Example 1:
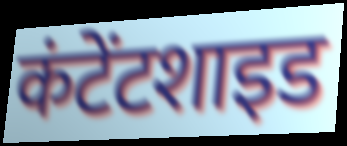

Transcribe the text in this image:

कंटेंटशाइड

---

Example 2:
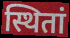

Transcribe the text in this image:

स्थितां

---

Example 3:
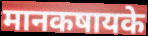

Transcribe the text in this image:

मानकषायके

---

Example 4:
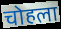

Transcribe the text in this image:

चोहला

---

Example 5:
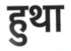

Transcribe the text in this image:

हुथा